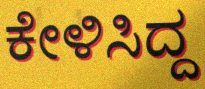
ಕೇಳಿಸಿದ್ದ